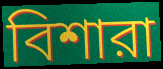
বিশারা